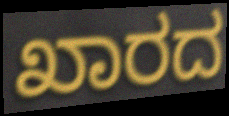
ಖಾರದ